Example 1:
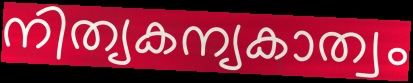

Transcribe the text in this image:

നിത്യകന്യകാത്വം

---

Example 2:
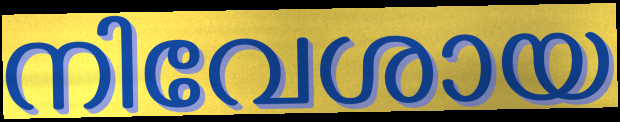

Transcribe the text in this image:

നിവേശായ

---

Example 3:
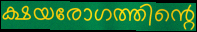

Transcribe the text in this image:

ക്ഷയരോഗത്തിന്റെ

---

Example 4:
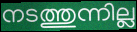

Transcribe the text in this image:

നടത്തുന്നില്ല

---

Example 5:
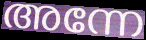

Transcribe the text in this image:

അന്നേ